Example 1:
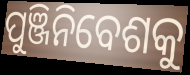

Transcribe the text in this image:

ପୁଞ୍ଜିନିବେଶକୁ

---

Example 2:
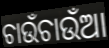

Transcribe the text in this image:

ଚାଉଁଚାଉଁଆ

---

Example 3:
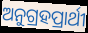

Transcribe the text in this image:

ଅନୁଗ୍ରହପ୍ରାର୍ଥୀ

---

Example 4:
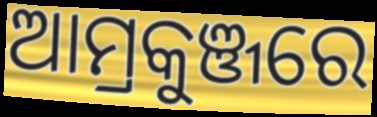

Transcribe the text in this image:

ଆମ୍ରକୁଞ୍ଜରେ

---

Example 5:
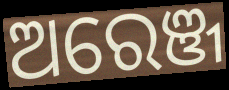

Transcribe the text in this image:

ଅରେଞ୍ଜ